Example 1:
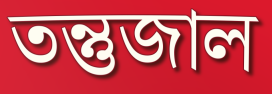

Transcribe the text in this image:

তন্তুজাল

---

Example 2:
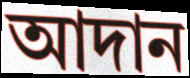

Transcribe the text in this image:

আদান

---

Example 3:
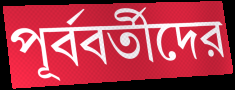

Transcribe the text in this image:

পূর্ববর্তীদের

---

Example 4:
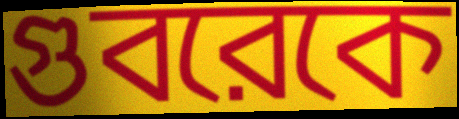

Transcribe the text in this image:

গুবরেকে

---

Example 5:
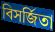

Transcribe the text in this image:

বিসর্জিতা